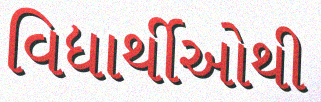
વિદ્યાર્થીઓથી